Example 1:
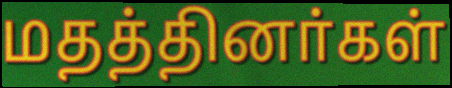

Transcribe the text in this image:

மதத்தினர்கள்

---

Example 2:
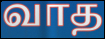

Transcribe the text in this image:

வாத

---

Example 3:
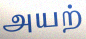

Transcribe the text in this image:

அயற்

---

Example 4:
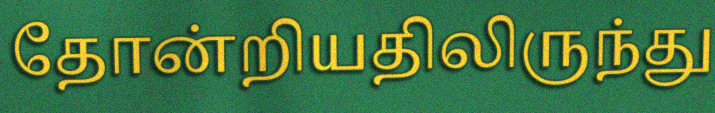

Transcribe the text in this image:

தோன்றியதிலிருந்து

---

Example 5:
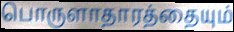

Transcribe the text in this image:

பொருளாதாரத்தையும்